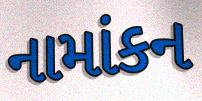
નામાંકન